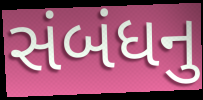
સંબંધનુ